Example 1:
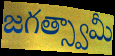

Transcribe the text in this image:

జగత్స్వామీ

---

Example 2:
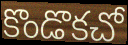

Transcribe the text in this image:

కొండొకచో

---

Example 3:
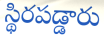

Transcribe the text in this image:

స్థిరపడ్డారు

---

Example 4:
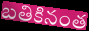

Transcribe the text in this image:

బతికినంత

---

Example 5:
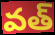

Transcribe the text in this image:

వత్